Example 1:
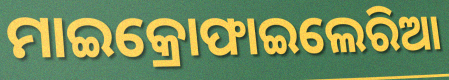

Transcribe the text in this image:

ମାଇକ୍ରୋଫାଇଲେରିଆ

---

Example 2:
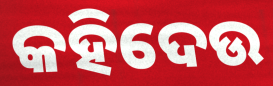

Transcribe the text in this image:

କହିଦେଉ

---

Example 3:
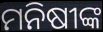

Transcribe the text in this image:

ମନିଷୀଙ୍କ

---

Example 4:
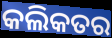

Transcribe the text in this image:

କଲିକତର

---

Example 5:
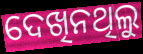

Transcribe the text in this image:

ଦେଖିନଥିଲୁ